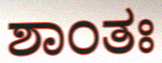
ಶಾಂತಃ